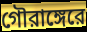
গৌরাঙ্গেরে